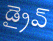
డ్రైవ్